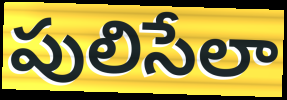
పులిసేలా